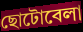
ছোটোবেলা